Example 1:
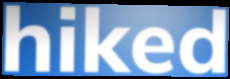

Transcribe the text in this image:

hiked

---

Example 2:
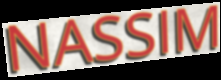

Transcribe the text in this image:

NASSIM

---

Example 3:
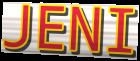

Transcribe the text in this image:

JENI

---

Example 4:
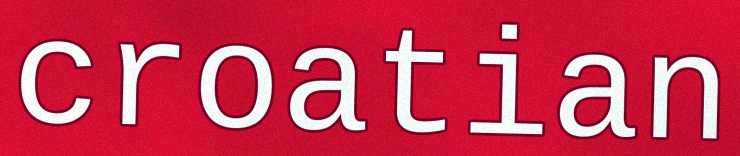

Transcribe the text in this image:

croatian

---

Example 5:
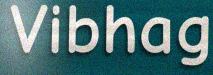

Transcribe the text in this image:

Vibhag